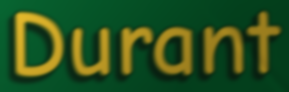
Durant